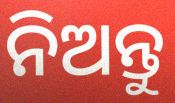
ନିଅନ୍ତୁ